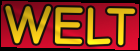
WELT